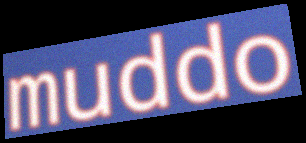
muddo